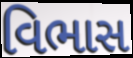
વિભાસ